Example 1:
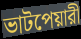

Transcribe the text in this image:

ভাটপেয়ারী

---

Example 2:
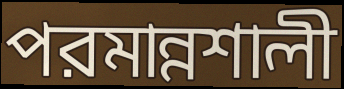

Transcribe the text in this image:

পরমান্নশালী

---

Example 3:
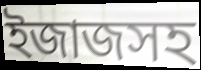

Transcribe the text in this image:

ইজাজসহ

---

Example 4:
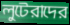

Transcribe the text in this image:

লুটেরাদের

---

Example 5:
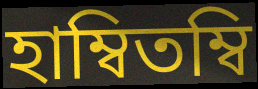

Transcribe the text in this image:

হাম্বিতম্বি